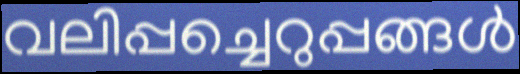
വലിപ്പച്ചെറുപ്പങ്ങൾ